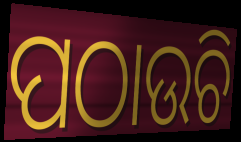
ପଠାଉଚି